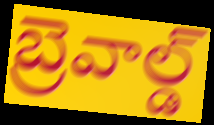
బ్రెవాల్డ్